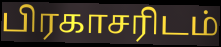
பிரகாசரிடம்